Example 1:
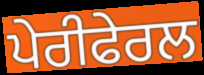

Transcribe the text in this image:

ਪੇਰੀਫੇਰਲ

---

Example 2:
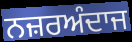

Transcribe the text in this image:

ਨਜ਼ਰਅੰਦਾਜ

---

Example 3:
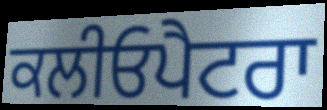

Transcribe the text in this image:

ਕਲੀਓਪੈਟਰਾ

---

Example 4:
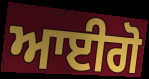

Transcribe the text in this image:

ਆਈਗੋ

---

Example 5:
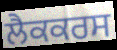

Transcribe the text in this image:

ਲੈਕਕਰਸ